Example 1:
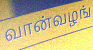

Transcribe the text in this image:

வான்வழங்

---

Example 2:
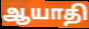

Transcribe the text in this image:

ஆயாதி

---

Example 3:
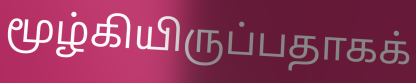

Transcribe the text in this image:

மூழ்கியிருப்பதாகக்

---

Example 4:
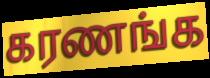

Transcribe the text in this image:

கரணங்க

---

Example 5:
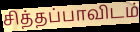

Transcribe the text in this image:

சித்தப்பாவிடம்